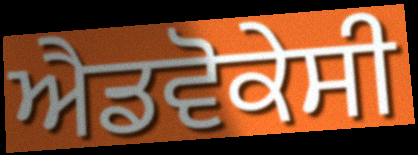
ਐਡਵੋਕੇਸੀ